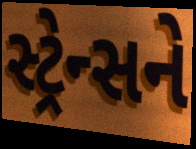
સ્ટ્રેન્સને